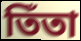
তিঁতা